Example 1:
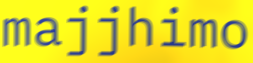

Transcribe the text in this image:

majjhimo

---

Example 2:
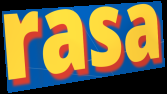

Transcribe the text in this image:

rasa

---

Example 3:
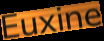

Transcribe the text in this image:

Euxine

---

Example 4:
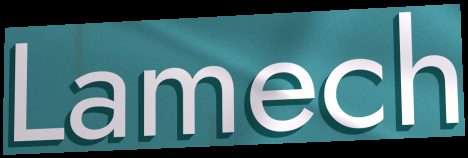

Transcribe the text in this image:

Lamech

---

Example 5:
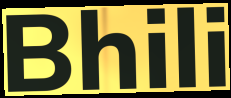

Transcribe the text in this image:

Bhili